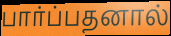
பார்ப்பதனால்